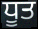
ਧੂਤ